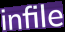
infile